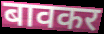
बावकर